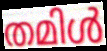
തമിൾ